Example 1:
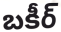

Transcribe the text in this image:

బకీర్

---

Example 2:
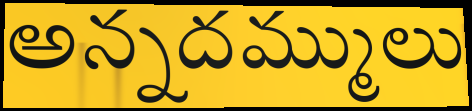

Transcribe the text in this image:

అన్నదమ్ములు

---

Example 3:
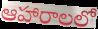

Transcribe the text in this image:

ఆహారాలలో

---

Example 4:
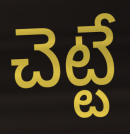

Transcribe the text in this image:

చెట్టే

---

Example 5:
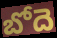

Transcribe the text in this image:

బోదె